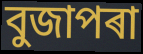
বুজাপৰা